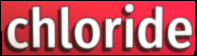
chloride